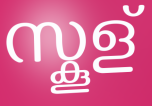
സ്കൂള്